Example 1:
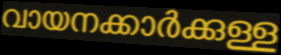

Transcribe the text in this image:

വായനക്കാർക്കുള്ള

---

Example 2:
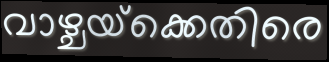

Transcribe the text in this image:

വാഴ്ചയ്‌ക്കെതിരെ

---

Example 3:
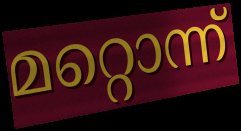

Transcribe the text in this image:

മറ്റൊന്ന്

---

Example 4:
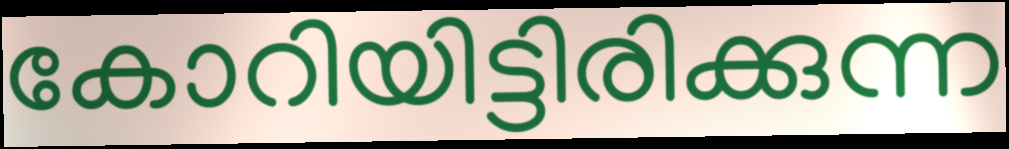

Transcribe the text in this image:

കോറിയിട്ടിരിക്കുന്ന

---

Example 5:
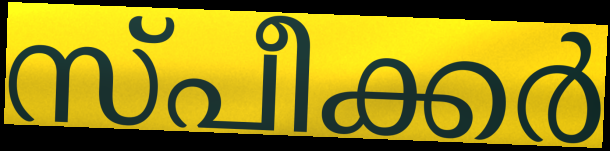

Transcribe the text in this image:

സ്പീക്കർ